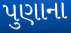
પુણાના